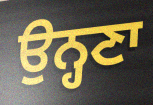
ਉਨ੍ਹਣਾ